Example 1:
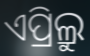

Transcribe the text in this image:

ଏପ୍ରିଲ୍ରୁ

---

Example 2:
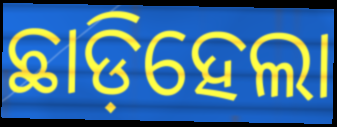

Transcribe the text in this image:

ଛାଡ଼ିହେଲା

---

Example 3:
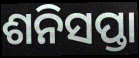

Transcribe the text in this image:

ଶନିସପ୍ତା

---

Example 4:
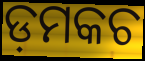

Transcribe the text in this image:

ଡ଼ମକଚ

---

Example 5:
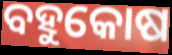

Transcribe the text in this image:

ବହୁକୋଷ